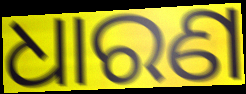
ଧାରଣ